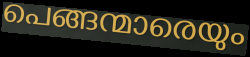
പെങ്ങന്മാരെയും